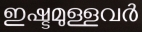
ഇഷ്ടമുള്ളവർ